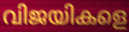
വിജയികളെ